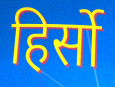
हिर्सो